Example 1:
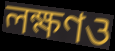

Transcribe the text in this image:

লক্ষণও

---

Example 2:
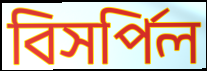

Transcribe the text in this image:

বিসর্পিল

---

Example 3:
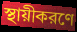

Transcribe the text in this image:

স্থায়ীকরণে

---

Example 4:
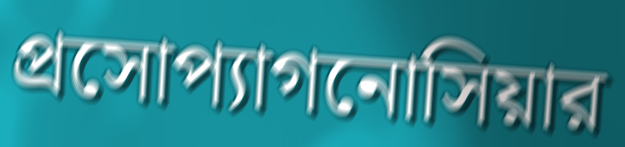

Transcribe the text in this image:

প্রসোপ্যাগনোসিয়ার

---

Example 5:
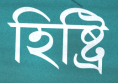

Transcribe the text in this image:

হিষ্ট্রি